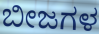
ಬೀಜಗಳ